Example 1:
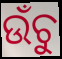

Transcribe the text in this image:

ଉଁଚୁ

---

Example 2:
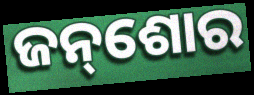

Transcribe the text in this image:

ଜନ୍‌ଶୋର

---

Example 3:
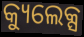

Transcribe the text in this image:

କ୍ୟୁଲେକ୍ସ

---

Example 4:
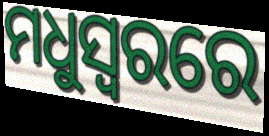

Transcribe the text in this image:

ମଧୁସ୍ୱରରେ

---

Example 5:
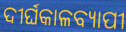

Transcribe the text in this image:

ଦୀର୍ଘକାଳବ୍ୟାପୀ